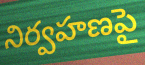
నిర్వహణపై